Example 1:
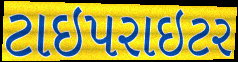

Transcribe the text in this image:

ટાઇપરાઇટર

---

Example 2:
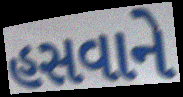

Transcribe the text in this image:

હસવાને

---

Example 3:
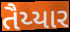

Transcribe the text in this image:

તૈય્યાર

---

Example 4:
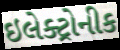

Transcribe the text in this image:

ઇલેક્ટ્રોનીક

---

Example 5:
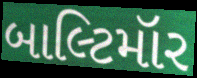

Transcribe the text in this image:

બાલ્ટિમૉર